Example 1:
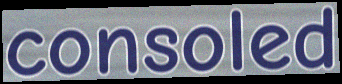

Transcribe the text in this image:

consoled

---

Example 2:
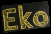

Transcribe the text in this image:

Eko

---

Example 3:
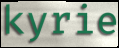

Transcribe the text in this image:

kyrie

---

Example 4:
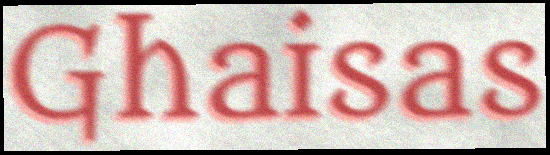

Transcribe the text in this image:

Ghaisas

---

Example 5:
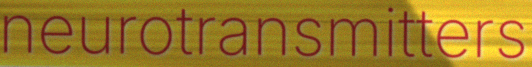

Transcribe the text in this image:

neurotransmitters